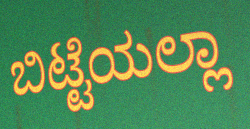
ಬಿಟ್ಟೆಯಲ್ಲಾ